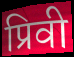
प्रिवी